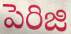
పెరిజి